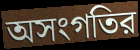
অসংগতির